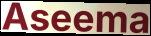
Aseema